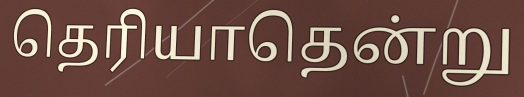
தெரியாதென்று